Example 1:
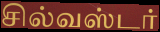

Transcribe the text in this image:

சில்வஸ்டர்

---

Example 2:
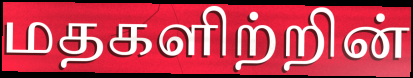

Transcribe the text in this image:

மதகளிற்றின்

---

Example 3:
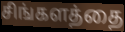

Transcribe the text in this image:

சிங்களத்தை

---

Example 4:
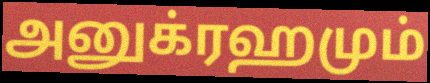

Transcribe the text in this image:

அனுக்ரஹமும்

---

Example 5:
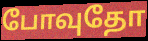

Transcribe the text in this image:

போவுதோ